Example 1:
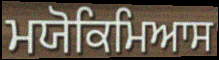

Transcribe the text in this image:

ਮਯੋਕਿਮਿਆਸ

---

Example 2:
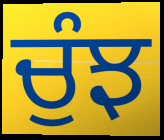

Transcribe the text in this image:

ਚੁੰਝ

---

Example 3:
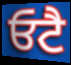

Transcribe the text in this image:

ਓਟੈ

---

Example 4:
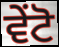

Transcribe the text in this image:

ਵੇਂਟੋ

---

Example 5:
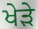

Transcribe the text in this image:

ਖੇੜੇ